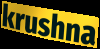
krushna